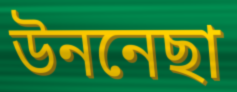
উননেছা